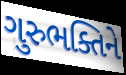
ગુરુભક્તિને